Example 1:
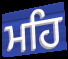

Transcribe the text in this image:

ਮਹਿ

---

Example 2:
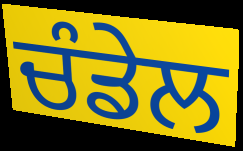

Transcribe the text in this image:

ਚੰਡੇਲ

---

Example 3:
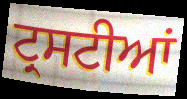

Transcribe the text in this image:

ਟ੍ਰਸਟੀਆਂ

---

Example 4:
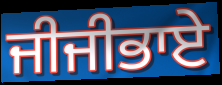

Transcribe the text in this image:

ਜੀਜੀਭਾਏ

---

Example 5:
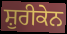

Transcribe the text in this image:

ਸ਼ੁਰੀਕੇਨ